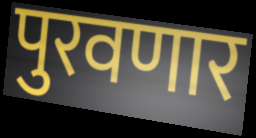
पुरवणार